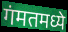
गंमतमध्ये